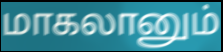
மாகலானும்